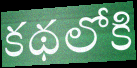
కథలోకి